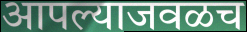
आपल्याजवळच